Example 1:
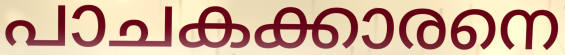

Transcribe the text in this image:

പാചകക്കാരനെ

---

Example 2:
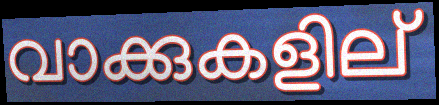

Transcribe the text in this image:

വാക്കുകളില്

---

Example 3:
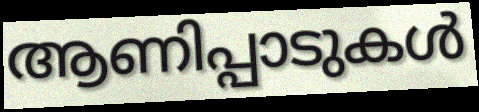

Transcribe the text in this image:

ആണിപ്പാടുകൾ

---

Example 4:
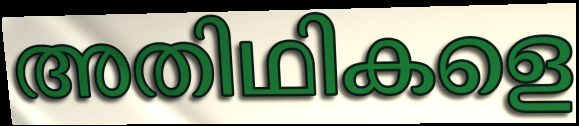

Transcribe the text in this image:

അതിഥികളെ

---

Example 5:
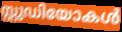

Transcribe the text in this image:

സ്റ്റുഡിയോകൾ